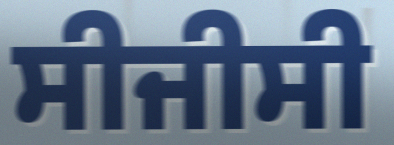
ਸੀਜੀਸੀ